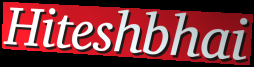
Hiteshbhai